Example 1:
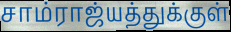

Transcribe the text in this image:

சாம்ராஜ்யத்துக்குள்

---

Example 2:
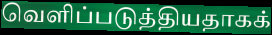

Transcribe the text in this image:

வெளிப்படுத்தியதாகக்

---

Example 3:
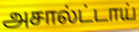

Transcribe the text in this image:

அசால்ட்டாய்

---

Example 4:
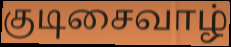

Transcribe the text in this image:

குடிசைவாழ்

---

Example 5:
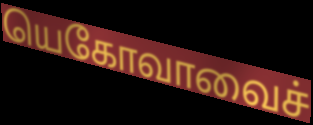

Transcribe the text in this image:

யெகோவாவைச்